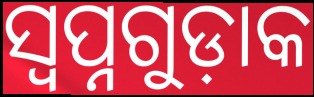
ସ୍ୱପ୍ନଗୁଡ଼ାକ